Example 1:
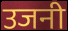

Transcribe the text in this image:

उजनी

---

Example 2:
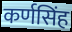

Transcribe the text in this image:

कर्णसिंह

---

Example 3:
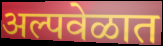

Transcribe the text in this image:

अल्पवेळात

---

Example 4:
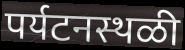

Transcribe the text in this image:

पर्यटनस्थळी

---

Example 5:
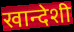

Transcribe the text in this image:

खान्देशी